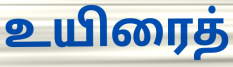
உயிரைத்